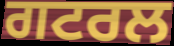
ਗਟਰਲ